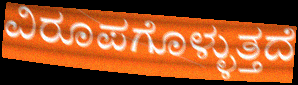
ವಿರೂಪಗೊಳ್ಳುತ್ತದೆ